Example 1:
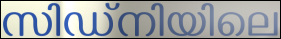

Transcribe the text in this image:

സിഡ്നിയിലെ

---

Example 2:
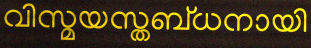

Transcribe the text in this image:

വിസ്മയസ്തബ്ധനായി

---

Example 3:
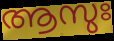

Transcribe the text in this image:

ആസുഃ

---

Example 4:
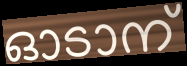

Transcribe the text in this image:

ഓടാന്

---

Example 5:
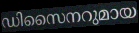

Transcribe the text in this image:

ഡിസൈനറുമായ